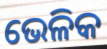
ଭେଳିକ